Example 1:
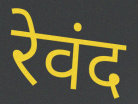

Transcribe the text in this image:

रेवंद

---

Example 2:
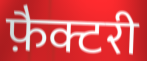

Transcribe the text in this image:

फ़ैक्टरी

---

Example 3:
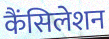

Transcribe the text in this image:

कैंसिलेशन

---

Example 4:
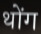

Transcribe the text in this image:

थोंग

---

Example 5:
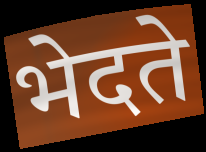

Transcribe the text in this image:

भेदते